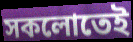
সকলোতেই